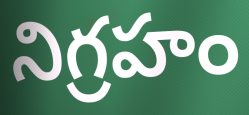
నిగ్రహం